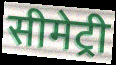
सीमेट्री